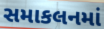
સમાકલનમાં